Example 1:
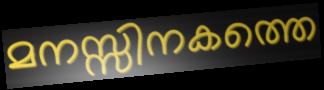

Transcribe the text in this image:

മനസ്സിനകത്തെ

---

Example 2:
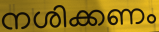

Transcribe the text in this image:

നശിക്കണം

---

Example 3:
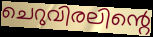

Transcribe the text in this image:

ചെറുവിരലിന്റെ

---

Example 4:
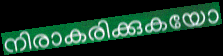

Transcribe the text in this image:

നിരാകരിക്കുകയോ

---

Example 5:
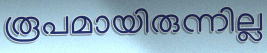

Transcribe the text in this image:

രൂപമായിരുന്നില്ല